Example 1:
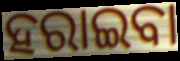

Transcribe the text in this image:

ହରାଇବା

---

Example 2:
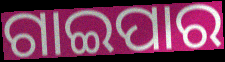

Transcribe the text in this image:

ଗାଇପାର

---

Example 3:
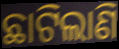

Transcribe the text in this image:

ଛାଟିଲାଣି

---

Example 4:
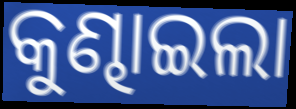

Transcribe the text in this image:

କୁଣ୍ଢାଇଲା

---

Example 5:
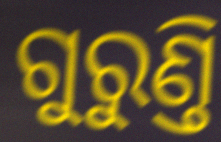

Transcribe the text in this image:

ଗୁରୁଣ୍ତି